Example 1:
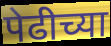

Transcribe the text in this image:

पेढीच्या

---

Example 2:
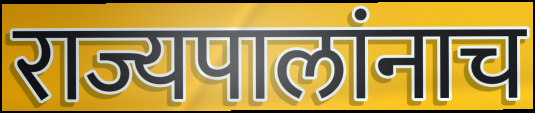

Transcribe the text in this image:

राज्यपालांनाच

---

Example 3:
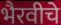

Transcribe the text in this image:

भैरवीचे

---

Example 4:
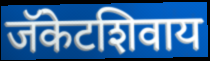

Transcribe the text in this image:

जॅकेटशिवाय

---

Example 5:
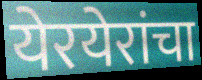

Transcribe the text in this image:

येरयेरांचा